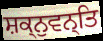
ਸ਼ਕ੍ਨੁਵਨ੍ਤਿ